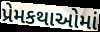
પ્રેમકથાઓમાં